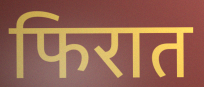
फिरात